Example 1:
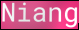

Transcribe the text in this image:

Niang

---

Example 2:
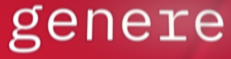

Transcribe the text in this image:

genere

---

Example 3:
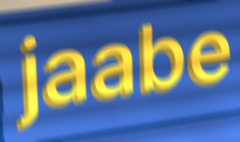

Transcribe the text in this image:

jaabe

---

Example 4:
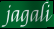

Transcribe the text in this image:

jagali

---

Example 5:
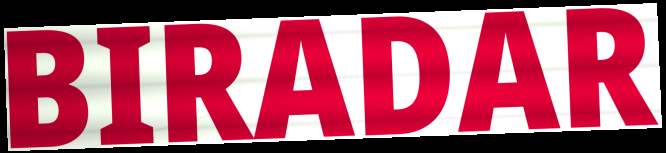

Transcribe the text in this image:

BIRADAR